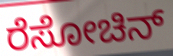
ರೆಸೋಚಿನ್